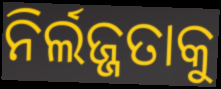
ନିର୍ଲଜ୍ଜତାକୁ